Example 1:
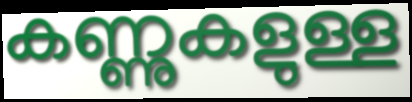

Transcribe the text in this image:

കണ്ണുകളുള്ള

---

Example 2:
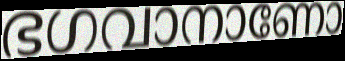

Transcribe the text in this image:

ഭഗവാനാണോ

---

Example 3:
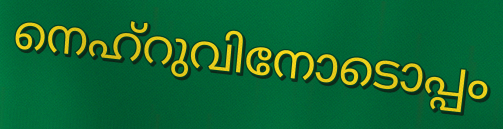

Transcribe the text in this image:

നെഹ്റുവിനോടൊപ്പം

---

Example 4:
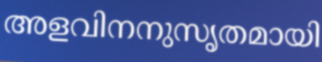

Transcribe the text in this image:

അളവിനനുസൃതമായി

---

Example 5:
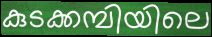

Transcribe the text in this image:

കുടക്കമ്പിയിലെ